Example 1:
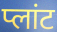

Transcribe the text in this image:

प्‍लांट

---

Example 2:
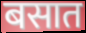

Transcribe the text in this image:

बसात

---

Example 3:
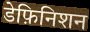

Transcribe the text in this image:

डेफ़िनिशन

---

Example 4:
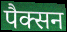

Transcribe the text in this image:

पैक्सन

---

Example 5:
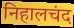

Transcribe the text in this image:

निहालचंद